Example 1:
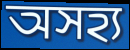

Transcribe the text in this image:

অসহ্য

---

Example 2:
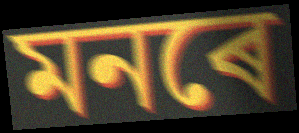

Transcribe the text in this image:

মনৰে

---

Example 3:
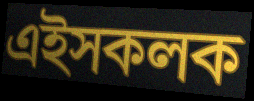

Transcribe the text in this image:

এইসকলক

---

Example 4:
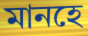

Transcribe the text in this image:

মানহে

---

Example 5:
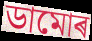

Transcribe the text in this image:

ডামোৰ